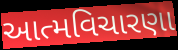
આત્મવિચારણા